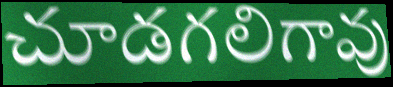
చూడగలిగావు